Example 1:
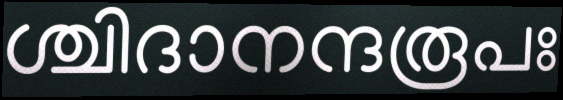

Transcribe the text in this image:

ശ്ചിദാനന്ദരൂപഃ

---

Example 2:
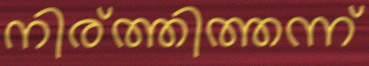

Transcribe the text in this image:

നിര്ത്തിത്തന്ന്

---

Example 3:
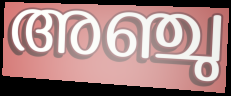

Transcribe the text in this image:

അഞ്ചു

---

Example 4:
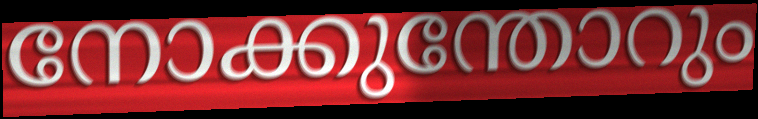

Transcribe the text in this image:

നോക്കുന്തോറും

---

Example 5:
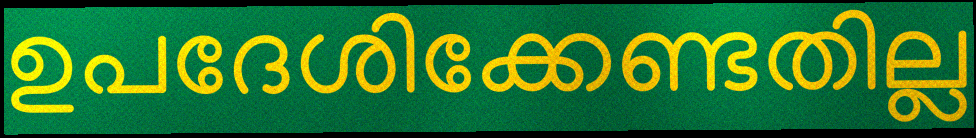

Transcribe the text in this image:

ഉപദേശിക്കേണ്ടതില്ല